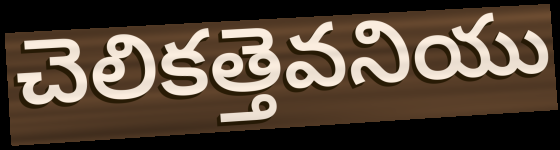
చెలికత్తెవనియు